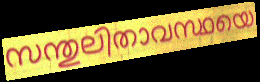
സന്തുലിതാവസ്ഥയെ